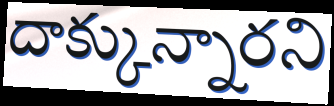
దాక్కున్నారని